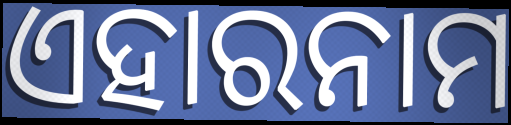
ଏହାରନାମ